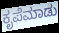
ಕೃಪೆಮಾಡು